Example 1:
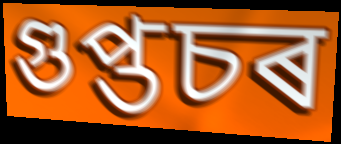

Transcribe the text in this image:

গুপ্তচৰ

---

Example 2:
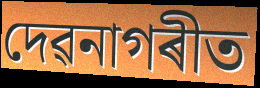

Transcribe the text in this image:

দেৱনাগৰীত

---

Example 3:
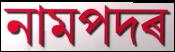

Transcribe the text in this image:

নামপদৰ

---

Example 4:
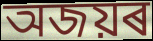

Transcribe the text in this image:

অজয়ৰ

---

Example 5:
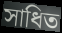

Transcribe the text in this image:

সাধিত